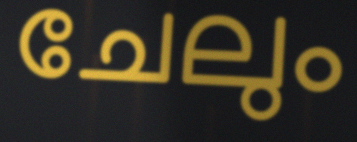
ചേലും